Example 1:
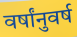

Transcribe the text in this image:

वर्षांनुवर्ष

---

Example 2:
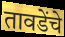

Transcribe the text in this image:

तावडेंचे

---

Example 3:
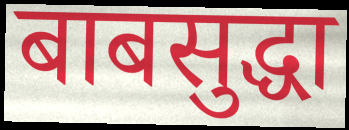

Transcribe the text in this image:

बाबसुद्धा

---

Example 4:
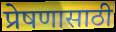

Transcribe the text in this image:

प्रेषणासाठी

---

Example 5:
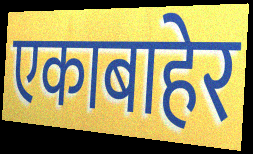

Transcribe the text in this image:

एकाबाहेर